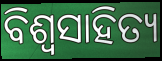
ବିଶ୍ଵସାହିତ୍ୟ